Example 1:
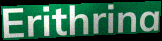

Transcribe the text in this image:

Erithrina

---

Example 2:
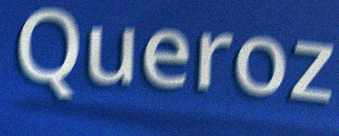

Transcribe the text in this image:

Queroz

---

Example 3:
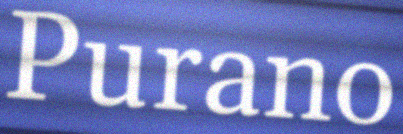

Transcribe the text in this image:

Purano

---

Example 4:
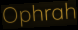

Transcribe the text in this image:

Ophrah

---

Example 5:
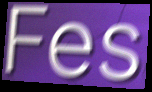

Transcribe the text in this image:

Fes